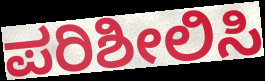
ಪರಿಶೀಲಿಸಿ